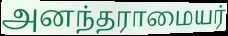
அனந்தராமையர்